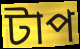
টাপ